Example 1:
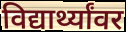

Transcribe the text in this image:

विद्यार्थ्यांवर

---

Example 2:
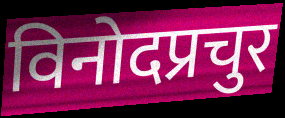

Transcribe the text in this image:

विनोदप्रचुर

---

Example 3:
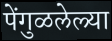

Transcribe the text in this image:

पेंगुळलेल्या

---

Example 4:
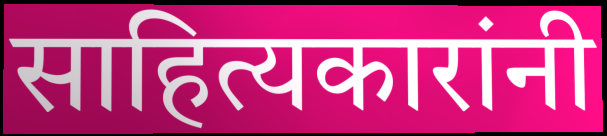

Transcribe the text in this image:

साहित्यकारांनी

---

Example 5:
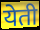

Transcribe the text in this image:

येती